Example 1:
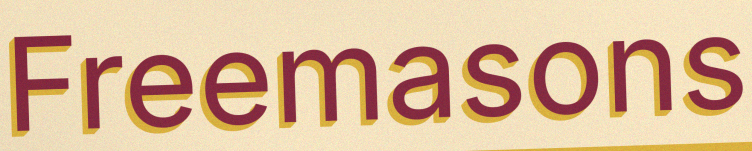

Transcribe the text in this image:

Freemasons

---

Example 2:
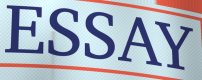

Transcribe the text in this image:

ESSAY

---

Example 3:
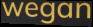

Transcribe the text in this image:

wegan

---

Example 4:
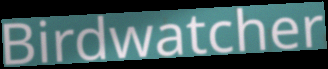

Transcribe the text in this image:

Birdwatcher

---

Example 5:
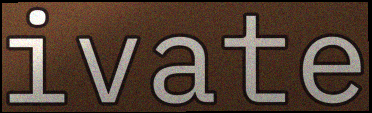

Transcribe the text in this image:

ivate